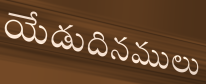
యేడుదినములు